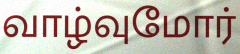
வாழ்வுமோர்